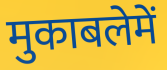
मुकाबलेमें